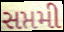
સપ્તમી